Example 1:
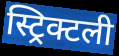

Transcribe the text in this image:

स्ट्रिक्टली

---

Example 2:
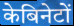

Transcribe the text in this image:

केबिनेटों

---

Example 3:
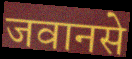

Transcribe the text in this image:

जवानसे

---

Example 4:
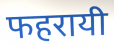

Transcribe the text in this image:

फहरायी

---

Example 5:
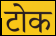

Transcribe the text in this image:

टोक